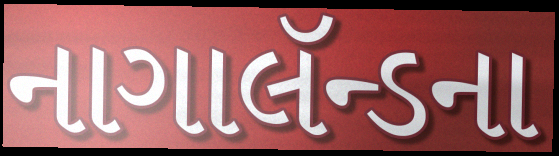
નાગાલૅન્ડના